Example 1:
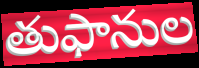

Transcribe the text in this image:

తుఫానుల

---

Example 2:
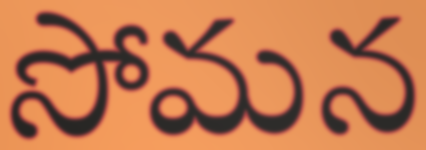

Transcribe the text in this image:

సోమన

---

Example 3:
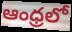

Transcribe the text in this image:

ఆంధ్రలో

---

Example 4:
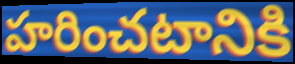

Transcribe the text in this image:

హరించటానికి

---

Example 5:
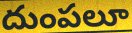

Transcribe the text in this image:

దుంపలూ